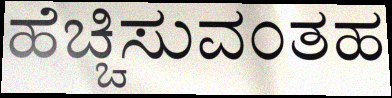
ಹೆಚ್ಚಿಸುವಂತಹ